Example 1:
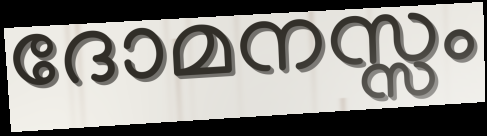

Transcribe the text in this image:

ദോമനസ്സം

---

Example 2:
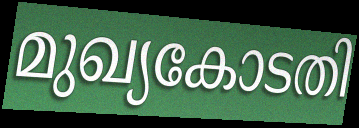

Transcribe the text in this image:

മുഖ്യകോടതി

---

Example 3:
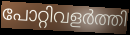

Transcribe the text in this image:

പോറ്റിവളർത്തി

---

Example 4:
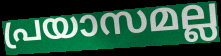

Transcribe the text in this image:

പ്രയാസമല്ല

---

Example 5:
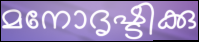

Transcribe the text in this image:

മനോദൃഷ്ടിക്കു